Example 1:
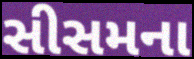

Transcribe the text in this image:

સીસમના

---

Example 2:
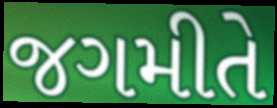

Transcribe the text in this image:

જગમીતે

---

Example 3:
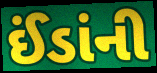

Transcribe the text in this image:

ઈંડાંની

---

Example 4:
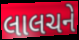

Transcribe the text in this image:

લાલચને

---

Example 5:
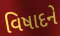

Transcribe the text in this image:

વિષાદને